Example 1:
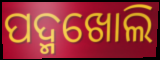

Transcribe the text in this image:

ପଦ୍ମଖୋଲି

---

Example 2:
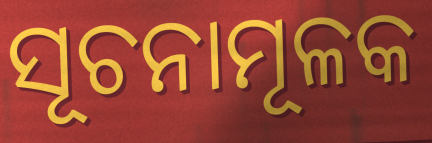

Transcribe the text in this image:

ସୂଚନାମୂଳକ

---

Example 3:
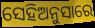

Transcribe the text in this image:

ସେହିଅନୁସାରେ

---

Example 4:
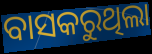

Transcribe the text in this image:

ବାସକରୁଥିଲା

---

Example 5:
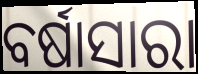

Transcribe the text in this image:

ବର୍ଷାସାରା